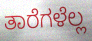
ತಾರೆಗಳೆಲ್ಲ